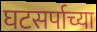
घटसर्पाच्या